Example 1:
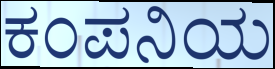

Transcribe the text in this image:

ಕಂಪನಿಯ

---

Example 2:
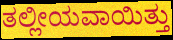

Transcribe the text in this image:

ತಲ್ಲೀಯವಾಯಿತ್ತು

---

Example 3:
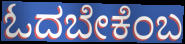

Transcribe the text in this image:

ಓದಬೇಕೆಂಬ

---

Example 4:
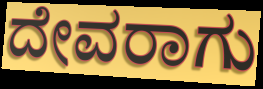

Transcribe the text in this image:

ದೇವರಾಗು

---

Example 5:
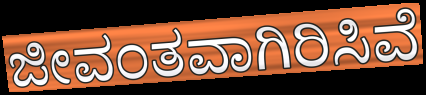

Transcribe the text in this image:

ಜೀವಂತವಾಗಿರಿಸಿವೆ